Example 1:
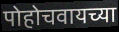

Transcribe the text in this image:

पोहोचवायच्या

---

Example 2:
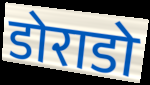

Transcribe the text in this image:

डोराडो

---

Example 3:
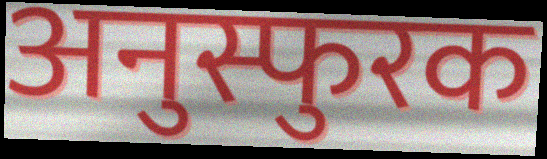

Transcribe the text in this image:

अनुस्फुरक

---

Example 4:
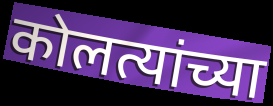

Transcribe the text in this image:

कोलत्यांच्या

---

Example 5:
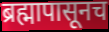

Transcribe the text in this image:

ब्रह्मापासूनच